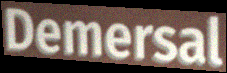
Demersal